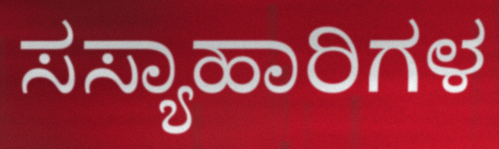
ಸಸ್ಯಾಹಾರಿಗಳ